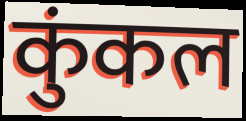
कुंकल